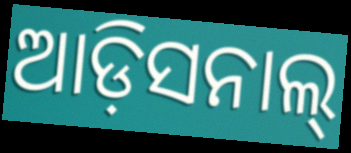
ଆଡ଼ିସନାଲ୍